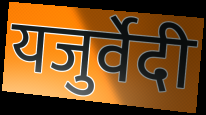
यजुर्वेदी